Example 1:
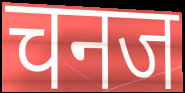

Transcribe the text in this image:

चनज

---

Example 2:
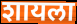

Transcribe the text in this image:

शायला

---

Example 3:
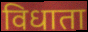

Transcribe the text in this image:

विधाता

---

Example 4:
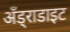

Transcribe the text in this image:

अँड्राडाइट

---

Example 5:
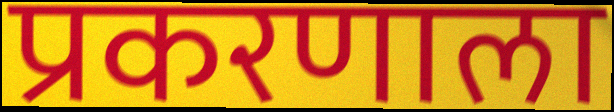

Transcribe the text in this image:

प्रकरणाला